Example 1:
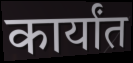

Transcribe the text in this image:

कार्यांत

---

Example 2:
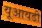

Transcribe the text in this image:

यूआयडी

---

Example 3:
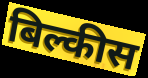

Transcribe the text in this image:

बिल्कीस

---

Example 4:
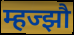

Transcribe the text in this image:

म्हज्झौ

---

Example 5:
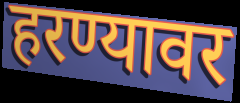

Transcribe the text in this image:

हरण्यावर